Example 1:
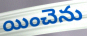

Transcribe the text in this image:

యించెను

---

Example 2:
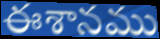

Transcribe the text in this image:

ఈశానము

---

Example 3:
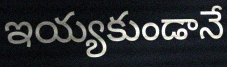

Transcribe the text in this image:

ఇయ్యకుండానే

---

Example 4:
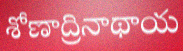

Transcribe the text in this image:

శోణాద్రినాథాయ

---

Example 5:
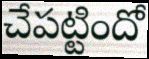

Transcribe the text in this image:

చేపట్టిందో